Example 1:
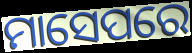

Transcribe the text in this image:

ମାସେପରେ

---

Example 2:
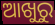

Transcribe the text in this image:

ଆଖୁରୁ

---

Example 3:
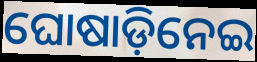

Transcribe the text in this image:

ଘୋଷାଡ଼ିନେଇ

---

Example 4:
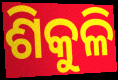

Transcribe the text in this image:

ଶିକୁଳି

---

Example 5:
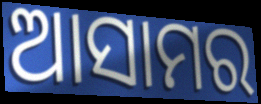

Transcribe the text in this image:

ଆସାମର